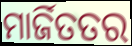
ମାର୍ଜିତତର